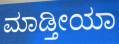
ಮಾಡ್ತೀಯಾ